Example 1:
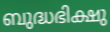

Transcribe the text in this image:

ബുദ്ധഭിക്ഷു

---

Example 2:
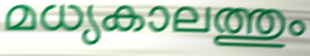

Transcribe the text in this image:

മധ്യകാലത്തും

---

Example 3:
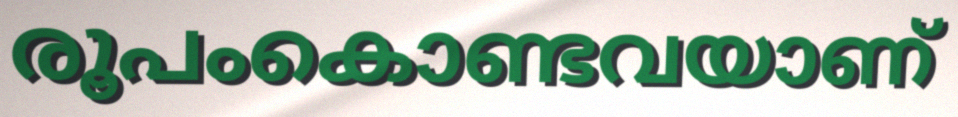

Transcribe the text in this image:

രൂപംകൊണ്ടവയാണ്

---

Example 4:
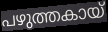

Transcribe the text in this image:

പഴുത്തകായ്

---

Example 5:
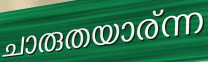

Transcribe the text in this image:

ചാരുതയാര്ന്ന